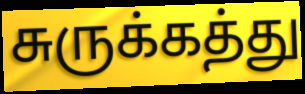
சுருக்கத்து